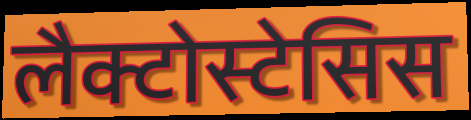
लैक्टोस्टेसिस